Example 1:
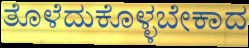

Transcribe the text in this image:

ತೊಳೆದುಕೊಳ್ಳಬೇಕಾದ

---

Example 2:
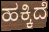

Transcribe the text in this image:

ಹಕ್ಕಿದೆ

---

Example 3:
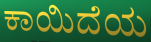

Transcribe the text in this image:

ಕಾಯಿದೆಯ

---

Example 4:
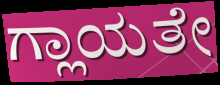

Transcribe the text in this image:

ಗ್ಲಾಯತೇ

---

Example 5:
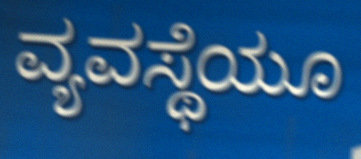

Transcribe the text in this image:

ವ್ಯವಸ್ಥೆಯೂ